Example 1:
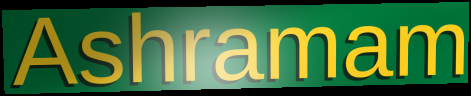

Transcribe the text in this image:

Ashramam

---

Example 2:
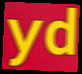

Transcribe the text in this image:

yd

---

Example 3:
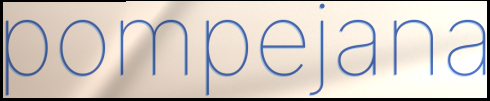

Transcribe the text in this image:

pompejana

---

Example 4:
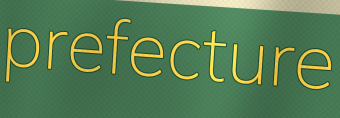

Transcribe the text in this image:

prefecture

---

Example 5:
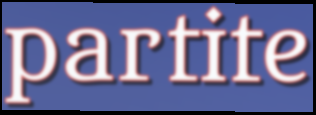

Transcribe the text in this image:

partite